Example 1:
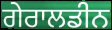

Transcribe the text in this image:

ਗੇਰਾਲਡੀਨ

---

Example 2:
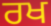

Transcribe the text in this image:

ਰਖ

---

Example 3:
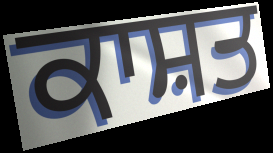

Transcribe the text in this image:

ਕਾਸ਼ਤ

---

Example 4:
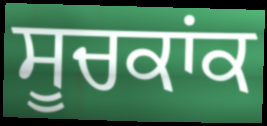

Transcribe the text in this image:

ਸੂਚਕਾਂਕ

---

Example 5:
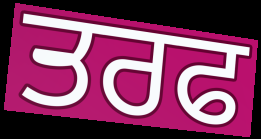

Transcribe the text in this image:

ਤਰਫ